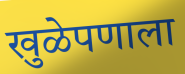
खुळेपणाला